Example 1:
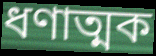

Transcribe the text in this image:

ধণাত্মক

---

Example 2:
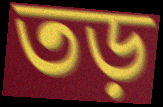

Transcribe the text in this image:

তড়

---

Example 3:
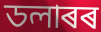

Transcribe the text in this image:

ডলাৰৰ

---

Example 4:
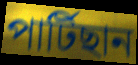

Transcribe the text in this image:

পাৰ্টিছান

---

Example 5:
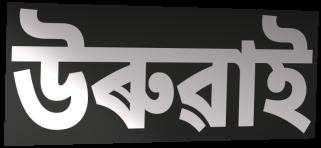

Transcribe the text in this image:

উৰুৱাই